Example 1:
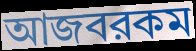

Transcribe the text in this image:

আজবরকম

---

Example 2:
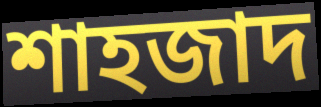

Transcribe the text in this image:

শাহজাদ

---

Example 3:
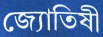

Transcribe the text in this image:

জ্যোতিষী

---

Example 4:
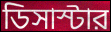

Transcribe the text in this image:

ডিসাস্টার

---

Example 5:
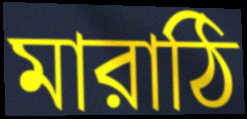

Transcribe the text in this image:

মারাঠি